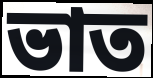
ভাত